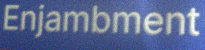
Enjambment